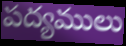
పద్యములు